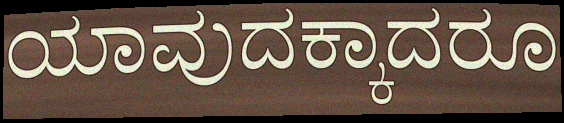
ಯಾವುದಕ್ಕಾದರೂ